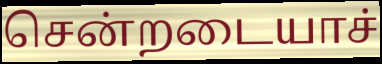
சென்றடையாச்